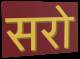
सरो